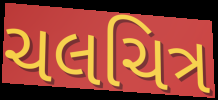
ચલચિત્ર